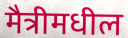
मैत्रीमधील